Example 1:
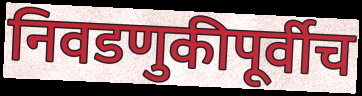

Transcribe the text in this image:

निवडणुकीपूर्वीच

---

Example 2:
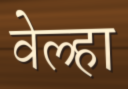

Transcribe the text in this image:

वेल्हा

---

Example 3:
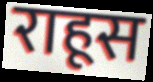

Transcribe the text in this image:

राहूस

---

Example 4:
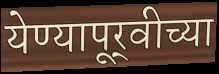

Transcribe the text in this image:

येण्यापूर्वीच्या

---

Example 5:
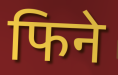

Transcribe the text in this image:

फिने